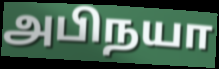
அபிநயா